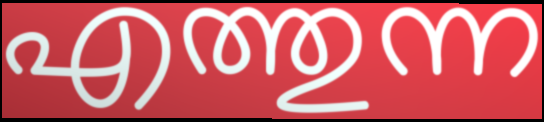
എത്തുന്ന